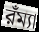
রঁম্যা